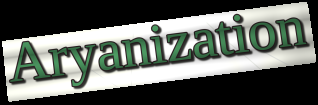
Aryanization